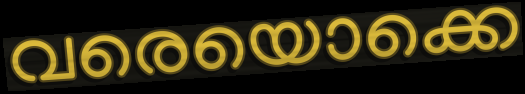
വരെയൊക്കെ